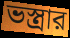
ভস্ত্রার